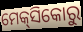
ମେକ୍‌ସିକୋରୁ